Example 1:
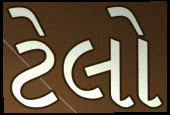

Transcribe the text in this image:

ટેલો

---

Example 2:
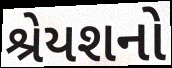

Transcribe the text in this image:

શ્રેયશનો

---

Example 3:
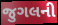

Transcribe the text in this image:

જુગલની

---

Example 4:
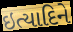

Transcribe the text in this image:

ઇત્‍યાદિને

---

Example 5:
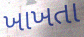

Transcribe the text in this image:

ખાખતા